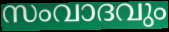
സംവാദവും